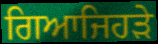
ਗਿਆਜਿਹੜੇ